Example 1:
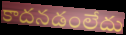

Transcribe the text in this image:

కాదనడంలేదు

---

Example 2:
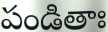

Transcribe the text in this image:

పండితాః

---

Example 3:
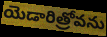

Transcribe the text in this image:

యెడారిత్రోవను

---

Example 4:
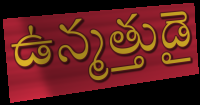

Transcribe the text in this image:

ఉన్మత్తుడై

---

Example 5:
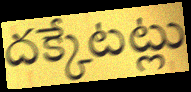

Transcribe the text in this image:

దక్కేటట్లు